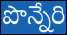
పొన్నేరి